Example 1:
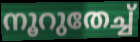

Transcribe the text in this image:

നൂറുതേച്ച്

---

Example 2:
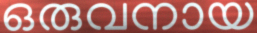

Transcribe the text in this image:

ഒരുവനായ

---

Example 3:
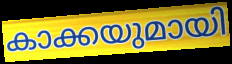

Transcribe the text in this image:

കാക്കയുമായി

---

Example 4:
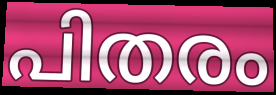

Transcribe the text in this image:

പിതരം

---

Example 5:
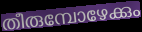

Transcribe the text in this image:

തീരുമ്പോഴേക്കും